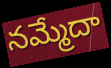
నమ్మేదా